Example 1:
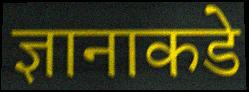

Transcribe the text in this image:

ज्ञानाकडे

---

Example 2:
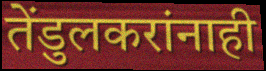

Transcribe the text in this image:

तेंडुलकरांनाही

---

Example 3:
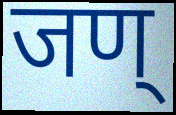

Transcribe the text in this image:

जण्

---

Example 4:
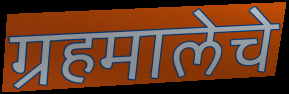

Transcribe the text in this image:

ग्रहमालेचे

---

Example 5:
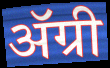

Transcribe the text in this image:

ॲग्री